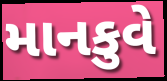
માનકુવે